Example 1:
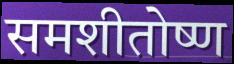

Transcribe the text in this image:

समशीतोष्ण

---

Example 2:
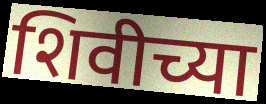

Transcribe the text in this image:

शिवीच्या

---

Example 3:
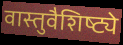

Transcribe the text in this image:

वास्तुवैशिष्ट्ये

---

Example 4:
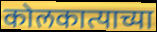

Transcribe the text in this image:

कोलकात्याच्या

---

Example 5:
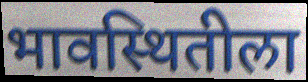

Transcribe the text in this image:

भावस्थितीला